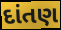
દાંતણ